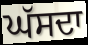
ਘੱਸਦਾ